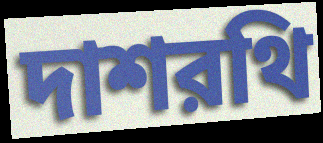
দাশরথি